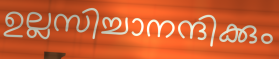
ഉല്ലസിച്ചാനന്ദിക്കും